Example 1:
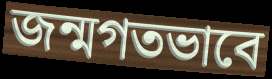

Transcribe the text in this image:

জন্মগতভাবে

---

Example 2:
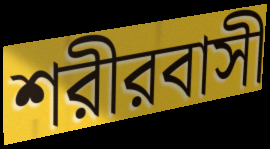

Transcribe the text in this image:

শরীরবাসী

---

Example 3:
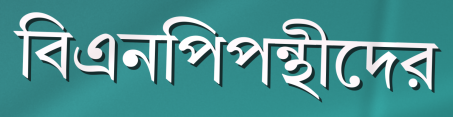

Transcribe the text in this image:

বিএনপিপন্থীদের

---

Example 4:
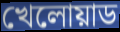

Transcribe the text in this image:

খেলোয়াড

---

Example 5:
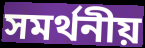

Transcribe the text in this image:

সমর্থনীয়